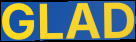
GLAD